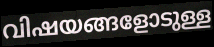
വിഷയങ്ങളോടുള്ള